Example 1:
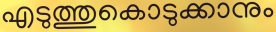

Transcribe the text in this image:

എടുത്തുകൊടുക്കാനും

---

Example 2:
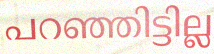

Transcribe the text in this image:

പറഞ്ഞിട്ടില്ല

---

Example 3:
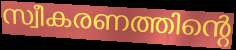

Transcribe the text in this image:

സ്വീകരണത്തിന്റെ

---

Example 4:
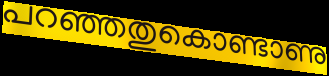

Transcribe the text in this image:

പറഞ്ഞതുകൊണ്ടാണു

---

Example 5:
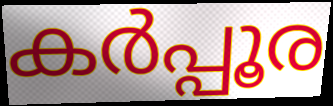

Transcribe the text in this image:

കർപ്പൂര